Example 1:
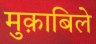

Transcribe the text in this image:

मुक़ाबिले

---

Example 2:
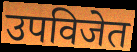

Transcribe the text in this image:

उपविजेत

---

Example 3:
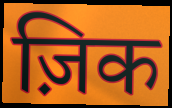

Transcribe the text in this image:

ज़िक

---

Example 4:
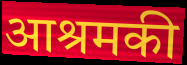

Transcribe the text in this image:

आश्रमकी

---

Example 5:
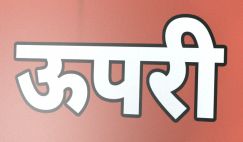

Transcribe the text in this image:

ऊपरी